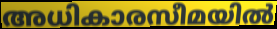
അധികാരസീമയിൽ